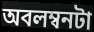
অবলম্বনটা